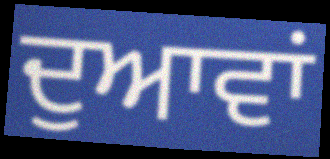
ਦੁਆਵਾਂ